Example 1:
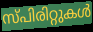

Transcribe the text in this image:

സ്പിരിറ്റുകൾ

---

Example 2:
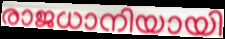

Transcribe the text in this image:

രാജധാനിയായി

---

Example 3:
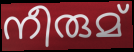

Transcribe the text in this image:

നീരുമ്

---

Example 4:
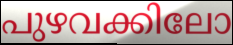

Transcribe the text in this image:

പുഴവക്കിലോ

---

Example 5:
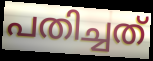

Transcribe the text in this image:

പതിച്ചത്